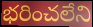
భరించలేని